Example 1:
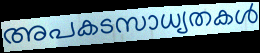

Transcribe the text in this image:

അപകടസാധ്യതകൾ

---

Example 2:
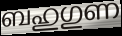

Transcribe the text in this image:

ബഹുഗുണ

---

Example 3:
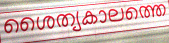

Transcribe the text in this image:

ശൈത്യകാലത്തെ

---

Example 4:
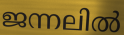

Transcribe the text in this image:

ജന്നലിൽ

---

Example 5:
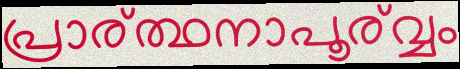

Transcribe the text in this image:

പ്രാര്ത്ഥനാപൂര്വ്വം